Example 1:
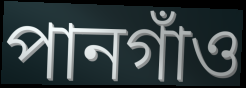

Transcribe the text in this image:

পানগাঁও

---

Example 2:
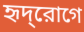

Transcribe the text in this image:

হৃদ্‌রোগে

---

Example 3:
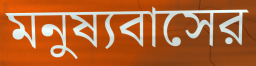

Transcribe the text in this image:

মনুষ্যবাসের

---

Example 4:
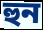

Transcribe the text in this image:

হুন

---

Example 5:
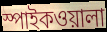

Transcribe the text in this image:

স্পাইকওয়ালা